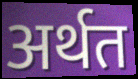
अर्थत